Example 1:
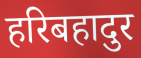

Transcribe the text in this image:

हरिबहादुर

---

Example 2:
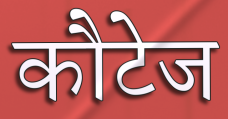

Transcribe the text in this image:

कौटेज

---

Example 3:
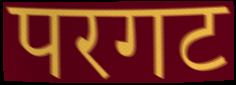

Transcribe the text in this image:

परगट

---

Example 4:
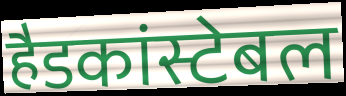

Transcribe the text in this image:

हैडकांस्टेबल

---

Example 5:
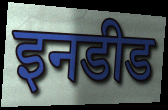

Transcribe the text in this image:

इनडीड